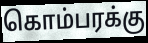
கொம்பரக்கு